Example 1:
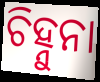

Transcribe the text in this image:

ଚିହ୍ନୁନା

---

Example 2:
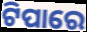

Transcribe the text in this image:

ଟିପାରେ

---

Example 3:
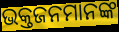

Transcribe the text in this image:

ଭକ୍ତଜନମାନଙ୍କ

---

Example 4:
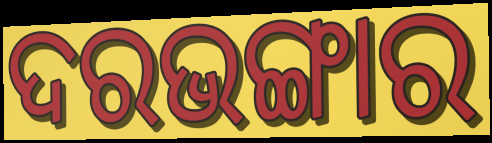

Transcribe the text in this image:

ଦରଭଙ୍ଗାର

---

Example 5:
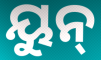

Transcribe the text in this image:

ୟୁନ୍